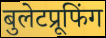
बुलेटप्रूफिंग